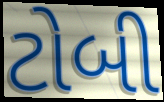
ટોબી